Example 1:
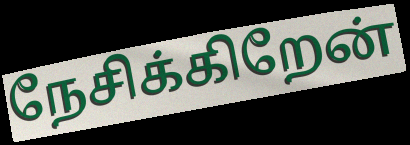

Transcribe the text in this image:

நேசிக்கிறேன்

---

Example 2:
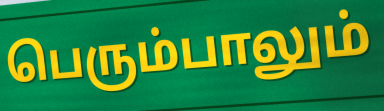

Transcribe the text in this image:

பெரும்பாலும்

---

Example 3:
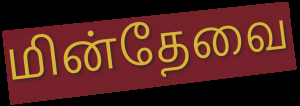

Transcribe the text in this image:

மின்தேவை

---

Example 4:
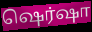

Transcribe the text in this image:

ஷெர்ஷா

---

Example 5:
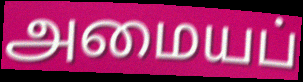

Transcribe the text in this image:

அமையப்